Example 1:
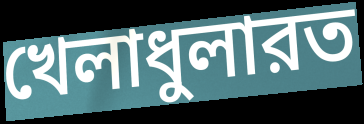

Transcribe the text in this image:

খেলাধুলারত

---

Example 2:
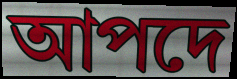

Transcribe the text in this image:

আপদে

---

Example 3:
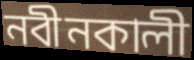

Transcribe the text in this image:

নবীনকালী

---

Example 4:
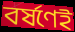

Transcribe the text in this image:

বর্ষণেই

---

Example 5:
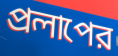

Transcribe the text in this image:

প্রলাপের